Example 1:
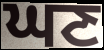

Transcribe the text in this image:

ਘਣ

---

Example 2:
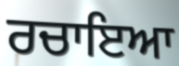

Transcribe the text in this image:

ਰਚਾਇਆ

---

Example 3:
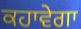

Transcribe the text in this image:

ਕਹਾਵੇਗਾ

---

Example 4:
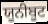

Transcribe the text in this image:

ਯੂਨੀਬੂਟ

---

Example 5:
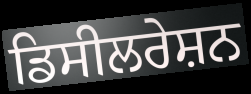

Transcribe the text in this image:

ਡਿਸੀਲਰੇਸ਼ਨ